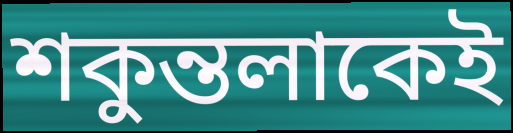
শকুন্তলাকেই